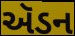
ઍડન